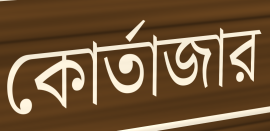
কোর্তাজার